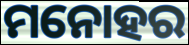
ମନୋହର